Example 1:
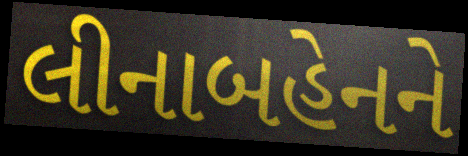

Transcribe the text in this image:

લીનાબહેનને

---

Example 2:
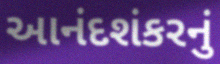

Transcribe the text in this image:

આનંદશંકરનું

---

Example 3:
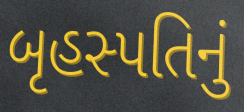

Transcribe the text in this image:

બૃહસ્પતિનું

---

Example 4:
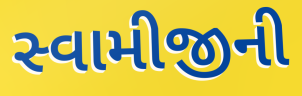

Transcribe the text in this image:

સ્વામીજીની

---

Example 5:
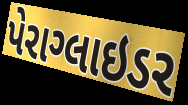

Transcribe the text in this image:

પેરાગ્લાઇડર